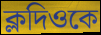
ক্লদিওকে